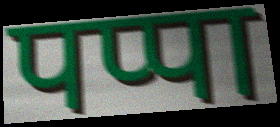
पप्‍पा